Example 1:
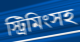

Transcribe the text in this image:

স্ট্রিমিংসহ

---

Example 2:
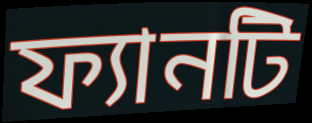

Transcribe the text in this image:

ফ্যানটি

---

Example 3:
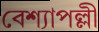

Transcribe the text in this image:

বেশ্যাপল্লী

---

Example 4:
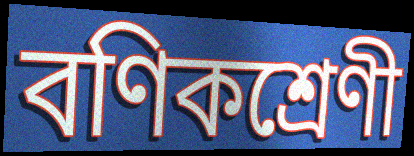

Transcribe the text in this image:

বণিকশ্রেণী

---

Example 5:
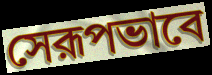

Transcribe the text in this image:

সেরূপভাবে